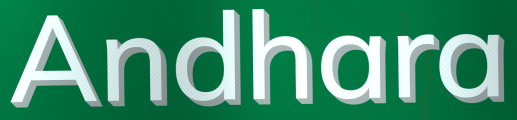
Andhara